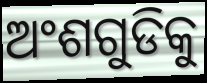
ଅଂଶଗୁଡିକୁ